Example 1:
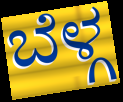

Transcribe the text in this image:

ಬೆಳ್ಗ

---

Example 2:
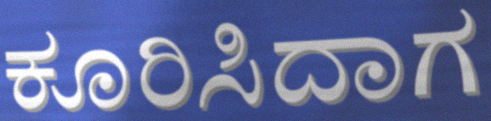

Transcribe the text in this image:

ಕೂರಿಸಿದಾಗ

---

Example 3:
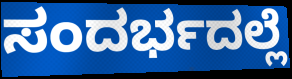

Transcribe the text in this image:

ಸಂದರ್ಭದಲ್ಲೆ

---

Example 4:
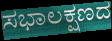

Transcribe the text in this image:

ಸಭಾಲಕ್ಷಣದ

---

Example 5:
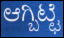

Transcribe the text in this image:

ಆಗ್ಬಿಟ್ಟೆ